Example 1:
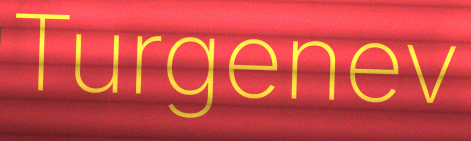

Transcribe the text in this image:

Turgenev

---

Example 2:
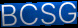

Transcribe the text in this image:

BCSG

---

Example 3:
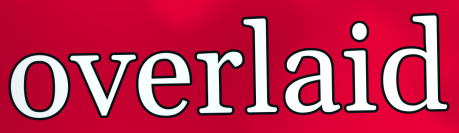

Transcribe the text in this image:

overlaid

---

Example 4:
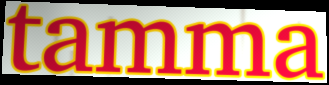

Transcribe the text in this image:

tamma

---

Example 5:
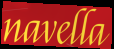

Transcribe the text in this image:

navella